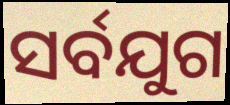
ସର୍ବଯୁଗ